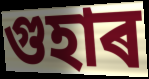
গুহাৰ